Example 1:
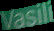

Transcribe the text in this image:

Vasili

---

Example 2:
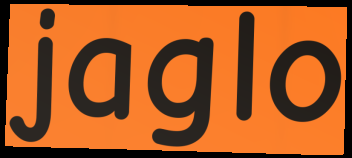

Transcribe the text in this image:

jaglo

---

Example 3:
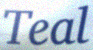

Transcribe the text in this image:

Teal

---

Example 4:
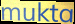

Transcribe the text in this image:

mukta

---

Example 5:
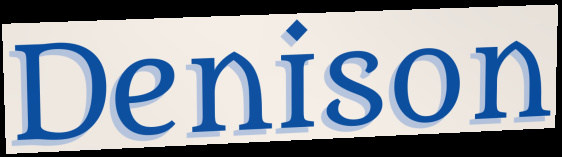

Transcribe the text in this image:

Denison